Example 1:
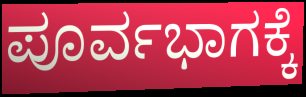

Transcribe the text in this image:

ಪೂರ್ವಭಾಗಕ್ಕೆ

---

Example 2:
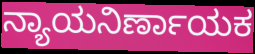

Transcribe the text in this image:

ನ್ಯಾಯನಿರ್ಣಾಯಕ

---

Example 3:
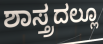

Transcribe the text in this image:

ಶಾಸ್ತ್ರದಲ್ಲೂ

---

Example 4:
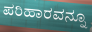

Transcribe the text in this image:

ಪರಿಹಾರವನ್ನೂ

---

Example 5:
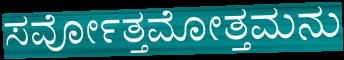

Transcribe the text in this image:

ಸರ್ವೋತ್ತಮೋತ್ತಮನು